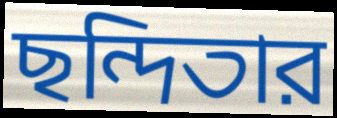
ছন্দিতার